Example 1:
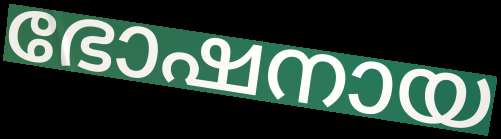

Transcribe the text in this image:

ഭോഷനായ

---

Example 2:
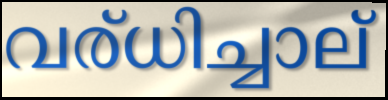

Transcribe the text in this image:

വര്ധിച്ചാല്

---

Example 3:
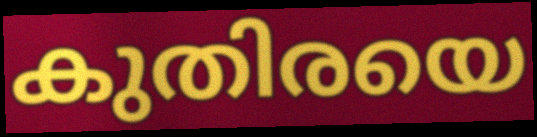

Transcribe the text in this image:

കുതിരയെ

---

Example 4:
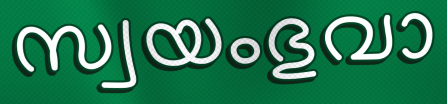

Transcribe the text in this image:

സ്വയംഭുവാ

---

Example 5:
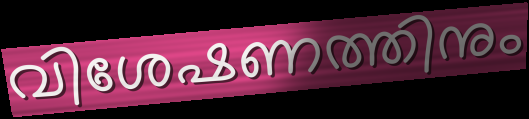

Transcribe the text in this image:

വിശേഷണത്തിനും